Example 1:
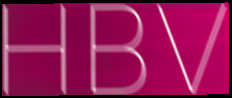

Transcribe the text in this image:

HBV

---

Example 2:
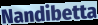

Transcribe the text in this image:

Nandibetta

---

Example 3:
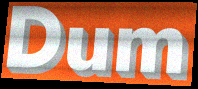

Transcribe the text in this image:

Dum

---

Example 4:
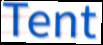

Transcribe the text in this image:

Tent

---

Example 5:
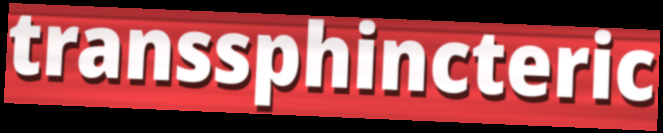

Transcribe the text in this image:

transsphincteric